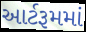
આર્ટરૂમમાં